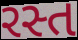
રસ્ત